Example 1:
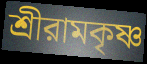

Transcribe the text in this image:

শ্রীরামকৃষ্ণ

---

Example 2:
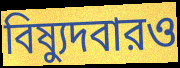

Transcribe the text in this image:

বিষ্যুদবারও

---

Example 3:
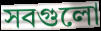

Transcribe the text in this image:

সবগুলো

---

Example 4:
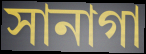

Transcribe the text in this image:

সানাগা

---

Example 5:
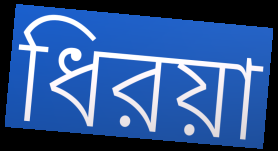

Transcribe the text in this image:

ধিরয়া